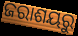
ଜରାଶୟରୁ